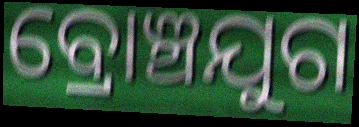
ବ୍ରୋଞ୍ଚଯୁଗ